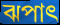
ঝপাৎ